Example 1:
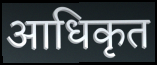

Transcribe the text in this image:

आधिकृत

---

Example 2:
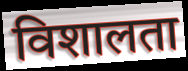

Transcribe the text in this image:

विशालता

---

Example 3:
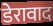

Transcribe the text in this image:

डेरावाद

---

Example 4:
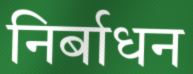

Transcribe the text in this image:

निर्बाधन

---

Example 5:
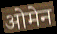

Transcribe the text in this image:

ओमेन